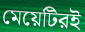
মেয়েটিরই